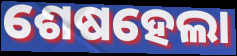
ଶେଷହେଲା